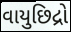
વાયુછિદ્રો